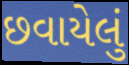
છવાયેલું